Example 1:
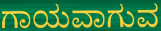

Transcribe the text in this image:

ಗಾಯವಾಗುವ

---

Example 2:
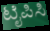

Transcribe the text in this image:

ಟೈಪಿಸಿ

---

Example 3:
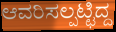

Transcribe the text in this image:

ಆವರಿಸಲ್ಪಟ್ಟಿದ್ದ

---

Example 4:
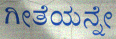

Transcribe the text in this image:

ಗೀತೆಯನ್ನೇ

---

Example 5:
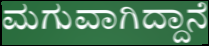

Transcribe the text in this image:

ಮಗುವಾಗಿದ್ದಾನೆ